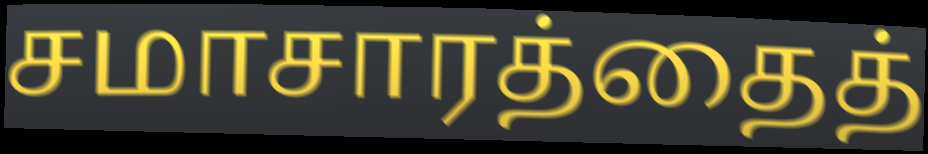
சமாசாரத்தைத்